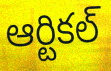
ఆర్టికల్